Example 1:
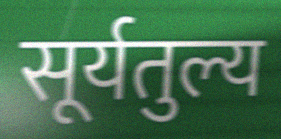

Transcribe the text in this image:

सूर्यतुल्य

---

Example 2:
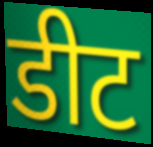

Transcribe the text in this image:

डीट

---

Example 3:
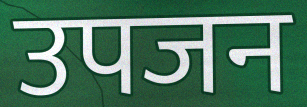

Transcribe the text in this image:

उपजन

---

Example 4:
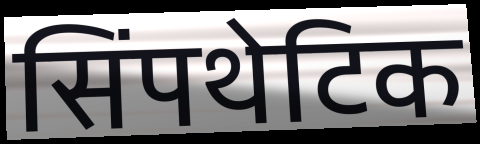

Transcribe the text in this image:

सिंपथेटिक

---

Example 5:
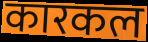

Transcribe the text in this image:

कारकल